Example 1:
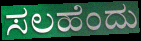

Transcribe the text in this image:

ಸಲಹೆಂದು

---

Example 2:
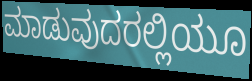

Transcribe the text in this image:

ಮಾಡುವುದರಲ್ಲಿಯೂ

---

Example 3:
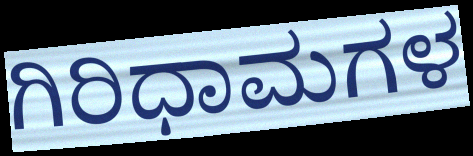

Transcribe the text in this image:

ಗಿರಿಧಾಮಗಳ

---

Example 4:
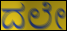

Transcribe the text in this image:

ದಲೇ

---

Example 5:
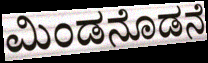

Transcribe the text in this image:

ಮಿಂಡನೊಡನೆ